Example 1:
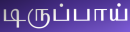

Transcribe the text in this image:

டிருப்பாய்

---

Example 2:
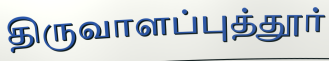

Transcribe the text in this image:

திருவாளப்புத்தூர்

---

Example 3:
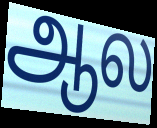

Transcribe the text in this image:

ஆல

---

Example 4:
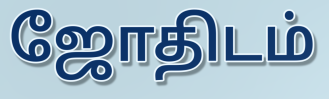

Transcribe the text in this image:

ஜோதிடம்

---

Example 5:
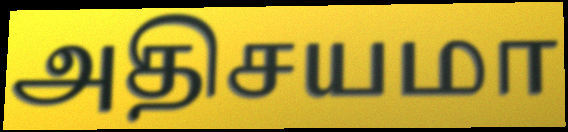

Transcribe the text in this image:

அதிசயமா